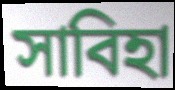
সাবিহা